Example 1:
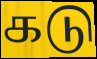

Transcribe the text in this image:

கடு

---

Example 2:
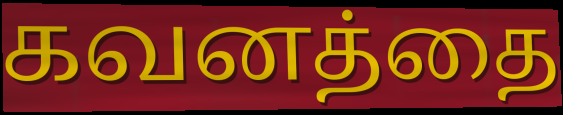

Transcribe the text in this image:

கவனத்தை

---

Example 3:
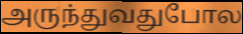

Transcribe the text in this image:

அருந்துவதுபோல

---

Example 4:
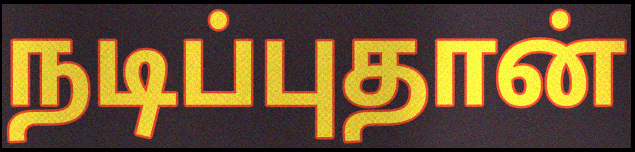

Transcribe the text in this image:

நடிப்புதான்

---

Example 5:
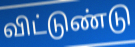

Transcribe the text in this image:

விட்டுண்டு